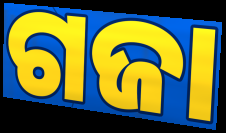
ଗଜା